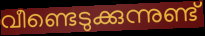
വീണ്ടെടുക്കുന്നുണ്ട്